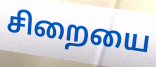
சிறையை